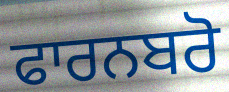
ਫਾਰਨਬਰੋ